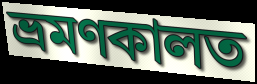
ভ্ৰমণকালত